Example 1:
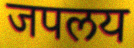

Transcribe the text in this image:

जपलय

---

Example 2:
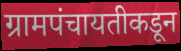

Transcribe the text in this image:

ग्रामपंचायतीकडून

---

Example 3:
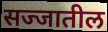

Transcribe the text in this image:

सज्जातील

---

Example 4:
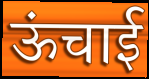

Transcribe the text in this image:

ऊंचाई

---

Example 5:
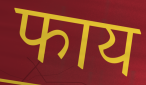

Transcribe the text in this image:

फाय